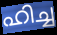
ഹിച്ച